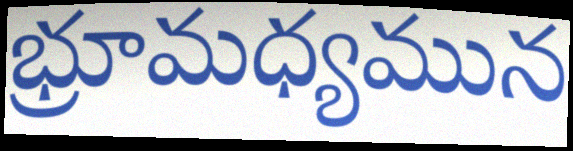
భ్రూమధ్యమున